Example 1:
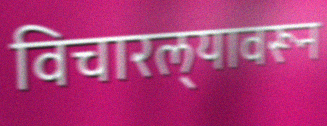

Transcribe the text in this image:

विचारल्यावरून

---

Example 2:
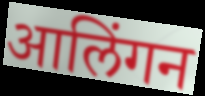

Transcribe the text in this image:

आलिंगन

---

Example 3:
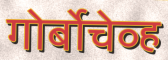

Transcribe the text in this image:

गोर्बोचेव्ह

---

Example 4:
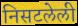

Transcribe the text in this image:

निसटलेली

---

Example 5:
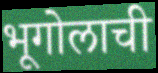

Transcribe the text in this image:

भूगोलाची